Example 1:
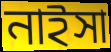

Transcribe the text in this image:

নাইসা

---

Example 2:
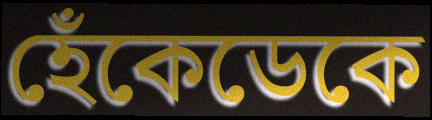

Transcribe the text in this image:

হেঁকেডেকে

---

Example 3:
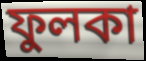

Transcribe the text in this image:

ফুলকা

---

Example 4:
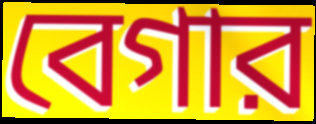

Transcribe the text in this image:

বেগার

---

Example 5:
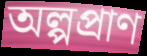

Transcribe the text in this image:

অল্পপ্রাণ